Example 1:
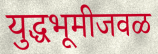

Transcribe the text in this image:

युद्धभूमीजवळ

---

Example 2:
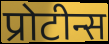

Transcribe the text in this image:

प्रोटीन्स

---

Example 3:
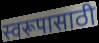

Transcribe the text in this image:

स्वरूपासाठी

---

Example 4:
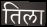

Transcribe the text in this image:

तिला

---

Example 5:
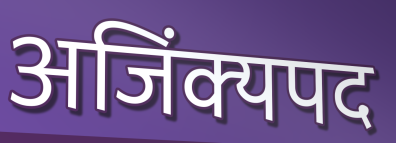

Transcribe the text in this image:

अजिंक्यपद